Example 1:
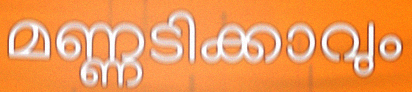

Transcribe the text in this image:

മണ്ണടിക്കാവും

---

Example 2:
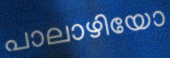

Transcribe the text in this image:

പാലാഴിയോ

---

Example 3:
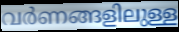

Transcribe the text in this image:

വർണങ്ങളിലുള്ള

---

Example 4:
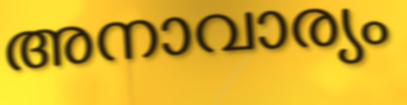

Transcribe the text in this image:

അനാവാര്യം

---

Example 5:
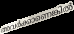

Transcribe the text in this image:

അവർക്കാണെങ്കിൽ